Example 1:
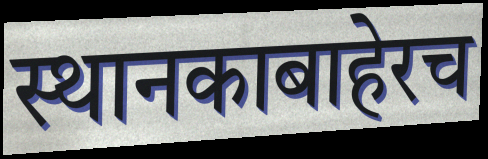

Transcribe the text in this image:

स्थानकाबाहेरच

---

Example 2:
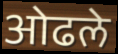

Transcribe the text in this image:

ओढले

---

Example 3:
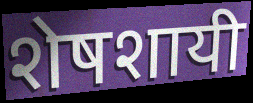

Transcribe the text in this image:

शेषशायी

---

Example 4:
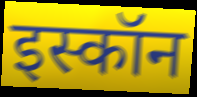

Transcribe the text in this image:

इस्कॉन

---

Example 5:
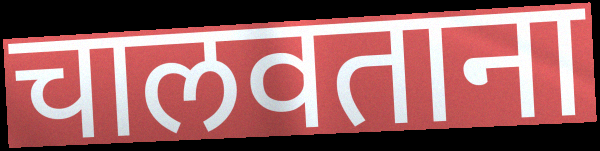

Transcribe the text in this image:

चालवताना